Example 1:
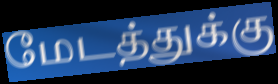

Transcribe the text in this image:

மேடத்துக்கு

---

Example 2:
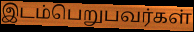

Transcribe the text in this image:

இடம்பெறுபவர்கள்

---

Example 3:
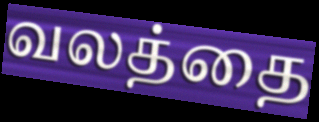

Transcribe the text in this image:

வலத்தை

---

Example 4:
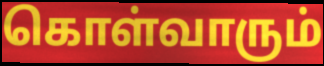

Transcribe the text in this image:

கொள்வாரும்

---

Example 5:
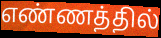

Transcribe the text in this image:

எண்ணத்தில்